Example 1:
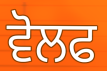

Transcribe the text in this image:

ਵੋਲਫ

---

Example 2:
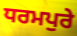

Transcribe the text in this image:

ਧਰਮਪੁਰੇ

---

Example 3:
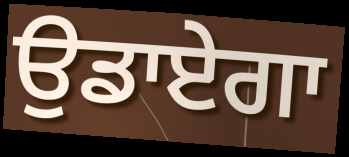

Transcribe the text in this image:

ਉਡਾਏਗਾ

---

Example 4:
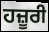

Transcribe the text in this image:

ਹਜ਼ੂਰੀ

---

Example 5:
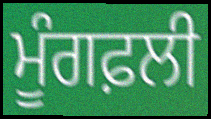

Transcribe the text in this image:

ਮੂੰਗਫ਼ਲੀ